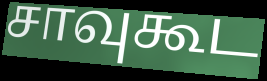
சாவுகூட